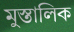
মুস্তালিক